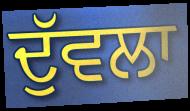
ਦੁੱਵਲਾ